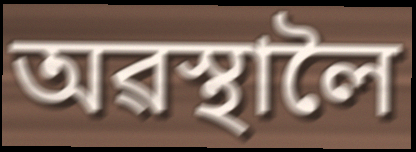
অৱস্থালৈ